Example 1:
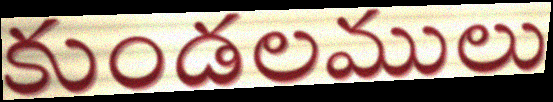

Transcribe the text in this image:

కుండలములు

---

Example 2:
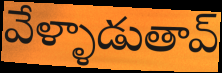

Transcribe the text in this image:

వేళ్ళాడుతావ్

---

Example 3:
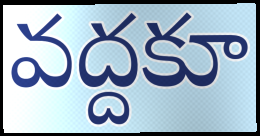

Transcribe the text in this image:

వద్దకూ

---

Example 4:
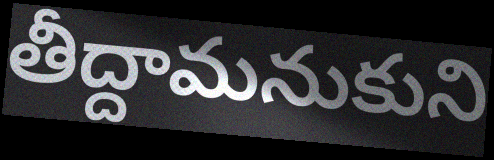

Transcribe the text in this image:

తీద్దామనుకుని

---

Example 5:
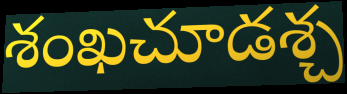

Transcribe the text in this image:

శంఖచూడశ్చ